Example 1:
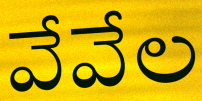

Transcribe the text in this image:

వేవేల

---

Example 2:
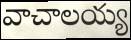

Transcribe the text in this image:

వాచాలయ్య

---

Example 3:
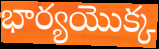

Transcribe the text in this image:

భార్యయొక్క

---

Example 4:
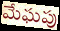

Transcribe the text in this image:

మేఘపు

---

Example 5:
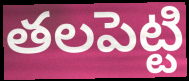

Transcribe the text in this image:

తలపెట్టి